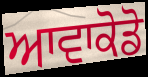
ਆਵਾਕੋਡੋ